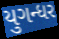
યુગન્ધર